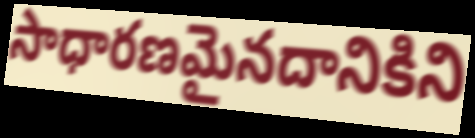
సాధారణమైనదానికిని